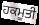
ਹਕਮੂਤੀ